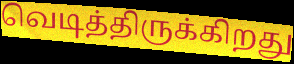
வெடித்திருக்கிறது